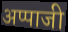
अप्पाजी